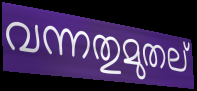
വന്നതുമുതല്